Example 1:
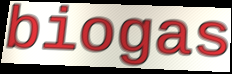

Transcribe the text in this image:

biogas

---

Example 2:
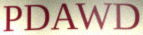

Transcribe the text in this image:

PDAWD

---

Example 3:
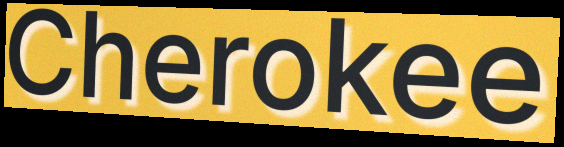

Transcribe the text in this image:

Cherokee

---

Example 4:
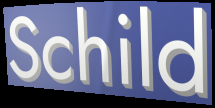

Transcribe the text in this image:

Schild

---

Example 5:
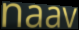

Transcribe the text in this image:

naav